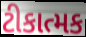
ટીકાત્મક